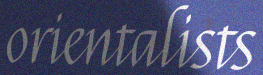
orientalists